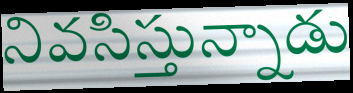
నివసిస్తున్నాడు